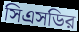
সিএসডির